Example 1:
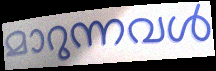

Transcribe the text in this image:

മാറുന്നവൾ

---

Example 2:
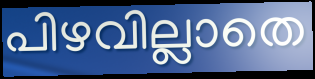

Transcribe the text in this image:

പിഴവില്ലാതെ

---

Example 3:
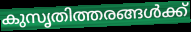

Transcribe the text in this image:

കുസൃതിത്തരങ്ങൾക്ക്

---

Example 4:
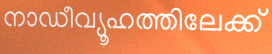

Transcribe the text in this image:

നാഡീവ്യൂഹത്തിലേക്ക്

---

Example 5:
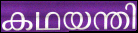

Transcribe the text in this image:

കഥയന്തി